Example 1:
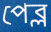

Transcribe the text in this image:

পেব্ল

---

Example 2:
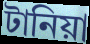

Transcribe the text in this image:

টানিয়া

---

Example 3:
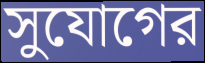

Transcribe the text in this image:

সুযোগের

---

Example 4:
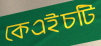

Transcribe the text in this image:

কেএইচটি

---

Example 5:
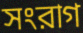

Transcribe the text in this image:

সংরাগ